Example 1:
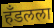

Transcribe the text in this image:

हँडलला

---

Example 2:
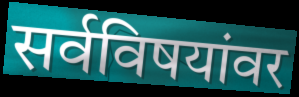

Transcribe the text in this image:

सर्वविषयांवर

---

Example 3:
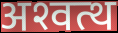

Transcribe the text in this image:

अश्वत्थ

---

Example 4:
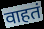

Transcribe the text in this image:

वाहतं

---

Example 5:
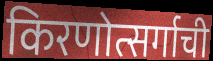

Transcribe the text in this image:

किरणोत्सर्गाची